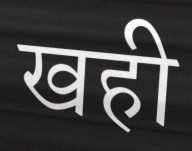
खही